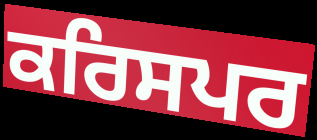
ਕਰਿਸਪਰ